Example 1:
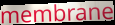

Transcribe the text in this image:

membrane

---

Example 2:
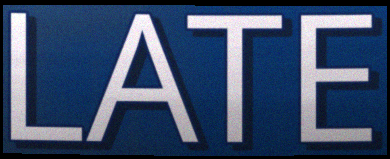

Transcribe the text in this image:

LATE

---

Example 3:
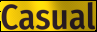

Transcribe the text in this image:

Casual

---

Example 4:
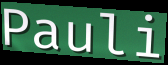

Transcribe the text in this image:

Pauli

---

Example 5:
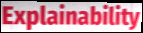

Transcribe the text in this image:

Explainability